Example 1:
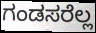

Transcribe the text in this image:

ಗಂಡಸರೆಲ್ಲ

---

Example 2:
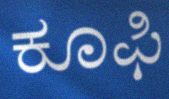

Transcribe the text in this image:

ಕೂಫಿ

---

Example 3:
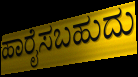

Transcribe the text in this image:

ಹಾರೈಸಬಹುದು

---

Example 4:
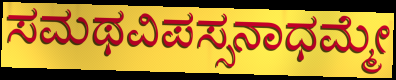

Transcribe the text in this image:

ಸಮಥವಿಪಸ್ಸನಾಧಮ್ಮೇ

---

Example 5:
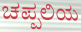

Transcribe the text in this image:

ಚಪ್ಪಲಿಯ